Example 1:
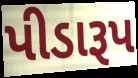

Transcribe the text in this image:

પીડારૂપ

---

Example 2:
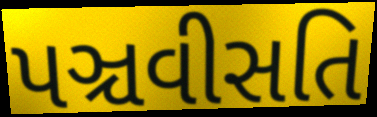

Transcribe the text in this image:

પઞ્ચવીસતિ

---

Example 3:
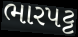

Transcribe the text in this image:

ભારપટ્ટ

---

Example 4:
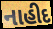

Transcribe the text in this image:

નાહીદ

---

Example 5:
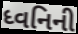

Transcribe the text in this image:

ધ્વનિની